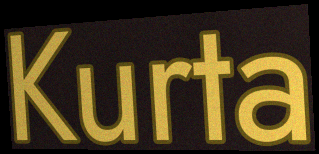
Kurta